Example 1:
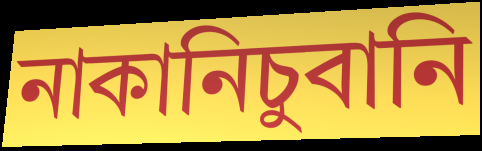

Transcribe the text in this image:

নাকানিচুবানি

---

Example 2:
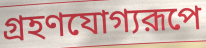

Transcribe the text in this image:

গ্রহণযোগ্যরূপে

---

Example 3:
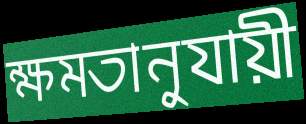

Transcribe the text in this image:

ক্ষমতানুযায়ী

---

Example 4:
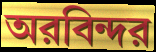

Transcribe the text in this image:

অরবিন্দর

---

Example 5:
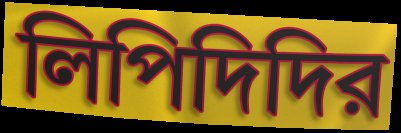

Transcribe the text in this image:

লিপিদিদির